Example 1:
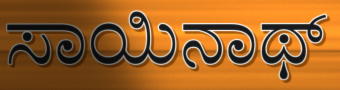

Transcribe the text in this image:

ಸಾಯಿನಾಥ್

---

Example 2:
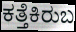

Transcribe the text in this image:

ಕತ್ತೆಕಿರುಬ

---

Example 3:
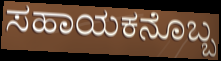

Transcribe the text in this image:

ಸಹಾಯಕನೊಬ್ಬ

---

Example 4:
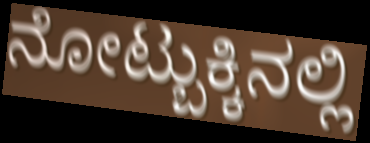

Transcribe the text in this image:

ನೋಟ್ಬುಕ್ಕಿನಲ್ಲಿ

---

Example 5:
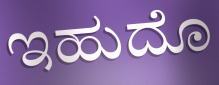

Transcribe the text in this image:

ಇಹುದೊ